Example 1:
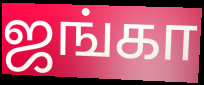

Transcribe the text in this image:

ஜங்கா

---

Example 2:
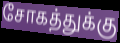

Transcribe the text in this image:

சோகத்துக்கு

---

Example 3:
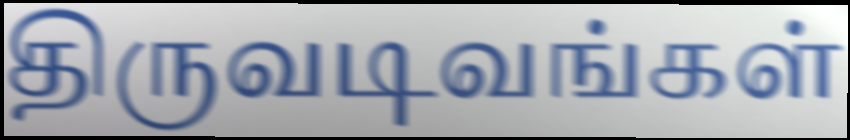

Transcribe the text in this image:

திருவடிவங்கள்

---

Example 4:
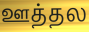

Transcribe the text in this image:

ஊத்தல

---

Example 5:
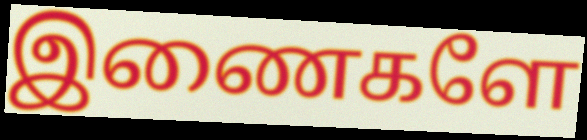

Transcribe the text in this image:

இணைகளே